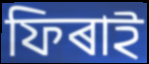
ফিৰাই